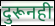
दुरूनही